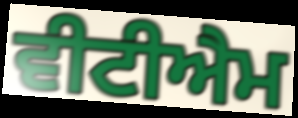
ਵੀਟੀਐਮ